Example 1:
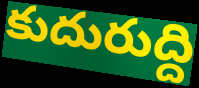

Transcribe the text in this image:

కుదురుద్ది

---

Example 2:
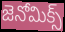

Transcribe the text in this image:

జెనోమిక్స్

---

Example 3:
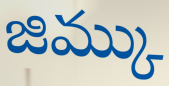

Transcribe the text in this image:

జిమ్కు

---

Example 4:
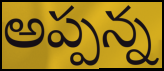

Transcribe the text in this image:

అప్పన్న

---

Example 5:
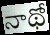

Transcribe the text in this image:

నాథో